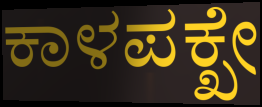
ಕಾಳಪಕ್ಖೇ